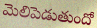
మెలిపెడుతుందో